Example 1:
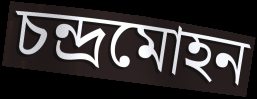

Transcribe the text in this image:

চন্দ্রমোহন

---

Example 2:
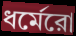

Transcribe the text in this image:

ধর্মেরো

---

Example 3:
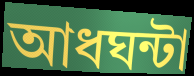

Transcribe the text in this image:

আধঘন্টা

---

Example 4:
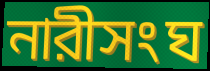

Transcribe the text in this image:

নারীসংঘ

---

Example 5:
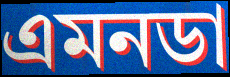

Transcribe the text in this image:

এমনডা